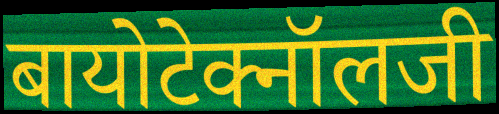
बायोटेक्नॉलजी